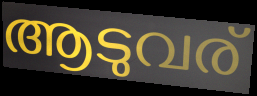
ആടുവര്